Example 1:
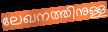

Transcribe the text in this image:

ലേഖനത്തിനുള്ള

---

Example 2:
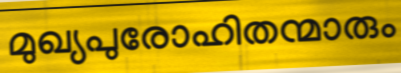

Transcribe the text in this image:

മുഖ്യപുരോഹിതന്മാരും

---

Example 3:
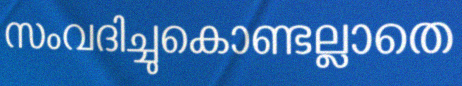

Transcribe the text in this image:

സംവദിച്ചുകൊണ്ടല്ലാതെ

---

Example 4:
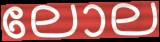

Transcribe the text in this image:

ലോല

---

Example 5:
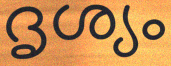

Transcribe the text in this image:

ദൃശ്യം